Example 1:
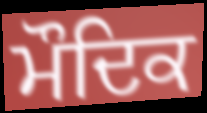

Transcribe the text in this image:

ਮੌਦਿਕ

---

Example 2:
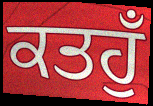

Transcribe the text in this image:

ਕਤਹੁਁ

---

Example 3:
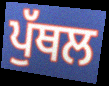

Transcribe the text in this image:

ਪੁੱਥਲ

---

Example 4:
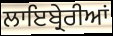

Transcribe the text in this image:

ਲਾਇਬ੍ਰੇਰੀਆਂ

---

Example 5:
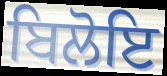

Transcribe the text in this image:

ਬਿਲੋਇ